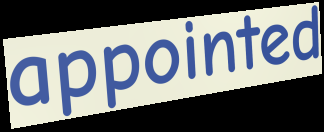
appointed